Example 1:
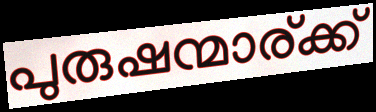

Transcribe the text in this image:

പുരുഷന്മാര്ക്ക്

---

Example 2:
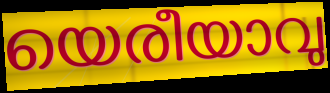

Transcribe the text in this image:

യെരീയാവു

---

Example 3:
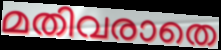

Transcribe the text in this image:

മതിവരാതെ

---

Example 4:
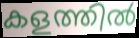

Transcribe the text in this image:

കളത്തിൽ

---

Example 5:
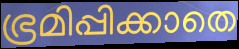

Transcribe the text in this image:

ഭ്രമിപ്പിക്കാതെ